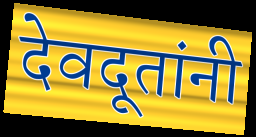
देवदूतांनी